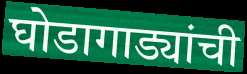
घोडागाड्यांची